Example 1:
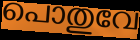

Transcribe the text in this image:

പൊതുവേ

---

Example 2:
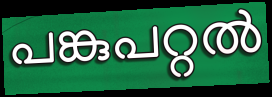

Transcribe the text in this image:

പങ്കുപറ്റൽ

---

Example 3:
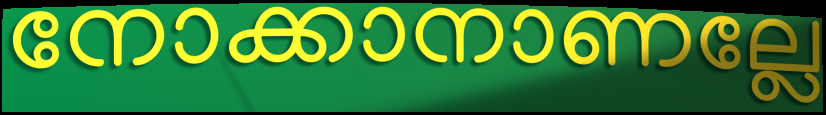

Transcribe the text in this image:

നോക്കാനാണല്ലേ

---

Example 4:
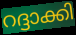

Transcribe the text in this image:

റദ്ദാക്കി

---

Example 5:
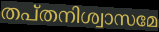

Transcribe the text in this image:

തപ്തനിശ്വാസമേ